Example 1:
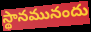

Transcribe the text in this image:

స్థానమునందు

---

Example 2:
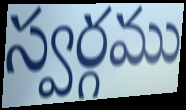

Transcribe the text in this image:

స్వర్గము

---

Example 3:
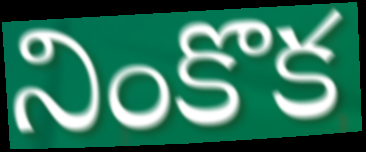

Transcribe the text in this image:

నింకొక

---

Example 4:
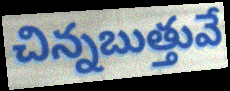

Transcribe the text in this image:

చిన్నబుత్తువే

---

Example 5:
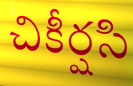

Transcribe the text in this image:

చికీర్షసి